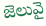
జెలువై